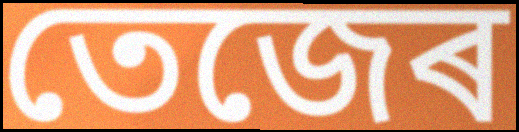
তেজেৰ